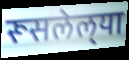
रूसलेल्या